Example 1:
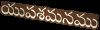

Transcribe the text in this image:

యుపశమనము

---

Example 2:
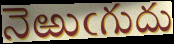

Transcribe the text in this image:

నెఱుఁగుదు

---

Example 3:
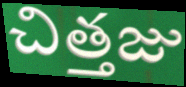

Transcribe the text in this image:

చిత్తజు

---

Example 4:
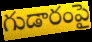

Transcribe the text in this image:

గుడారంపై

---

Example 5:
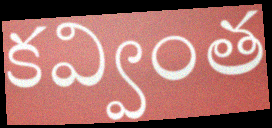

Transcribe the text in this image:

కవ్వింత